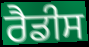
ਰੈਡੀਸ